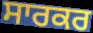
ਸਾਰਕਰ